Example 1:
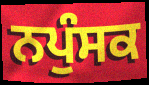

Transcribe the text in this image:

ਨਪੁੰਸਕ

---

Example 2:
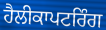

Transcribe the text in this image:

ਹੈਲੀਕਾਪਟਰਿੰਗ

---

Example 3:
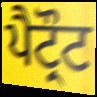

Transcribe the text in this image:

ਪੈਟ੍ਰੌਟ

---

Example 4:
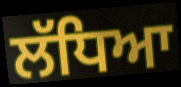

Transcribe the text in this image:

ਲੱਧਿਆ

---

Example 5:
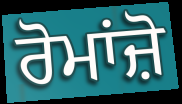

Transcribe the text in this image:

ਰੋਮਾਂਜ਼ੋ